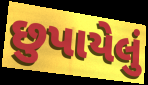
છુપાયેલું